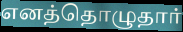
எனத்தொழுதார்